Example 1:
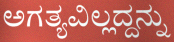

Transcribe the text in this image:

ಅಗತ್ಯವಿಲ್ಲದ್ದನ್ನು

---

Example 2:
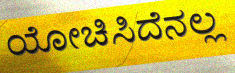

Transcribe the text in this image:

ಯೋಚಿಸಿದೆನಲ್ಲ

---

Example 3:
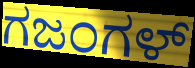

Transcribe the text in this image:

ಗಜಂಗಳ್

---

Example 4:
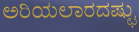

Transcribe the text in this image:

ಅರಿಯಲಾರದಷ್ಟು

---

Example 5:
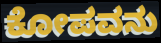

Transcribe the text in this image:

ಕೋಪವನು